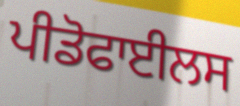
ਪੀਡੋਫਾਈਲਸ